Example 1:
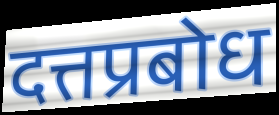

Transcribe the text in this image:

दत्तप्रबोध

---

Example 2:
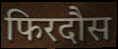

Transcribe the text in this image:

फिरदौस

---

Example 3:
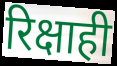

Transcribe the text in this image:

रिक्षाही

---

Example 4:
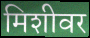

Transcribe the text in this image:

मिशीवर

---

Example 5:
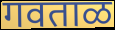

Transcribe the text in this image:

गवताळ